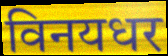
विनयधर